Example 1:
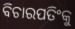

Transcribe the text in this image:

ବିଚାରପତିଂକୁ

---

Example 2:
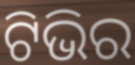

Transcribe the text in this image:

ଟିଭିର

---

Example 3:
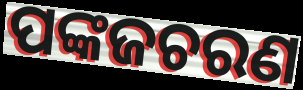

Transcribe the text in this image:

ପଙ୍କଜଚରଣ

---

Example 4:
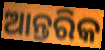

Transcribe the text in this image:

ଆନ୍ତରିକ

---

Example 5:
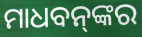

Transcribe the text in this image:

ମାଧବନ୍‌ଙ୍କର